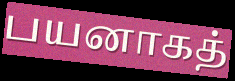
பயனாகத்